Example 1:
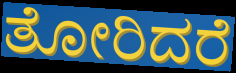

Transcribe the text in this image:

ತೋರಿದರೆ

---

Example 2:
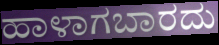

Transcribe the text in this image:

ಹಾಳಾಗಬಾರದು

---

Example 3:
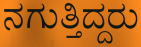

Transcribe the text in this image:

ನಗುತ್ತಿದ್ದರು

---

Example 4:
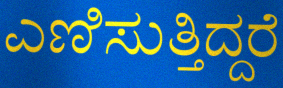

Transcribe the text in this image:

ಎಣಿಸುತ್ತಿದ್ದರೆ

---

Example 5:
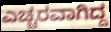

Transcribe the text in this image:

ಎಚ್ಚರವಾಗಿದ್ದ